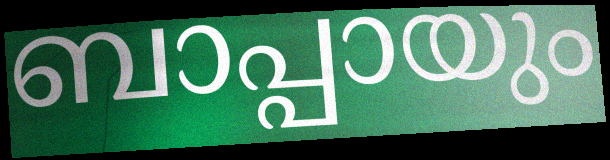
ബാപ്പായും